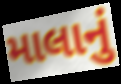
માલાનું